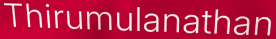
Thirumulanathan